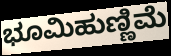
ಭೂಮಿಹುಣ್ಣಿಮೆ